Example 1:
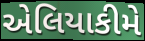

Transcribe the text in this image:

એલિયાકીમે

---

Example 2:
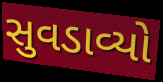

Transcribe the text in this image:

સુવડાવ્યો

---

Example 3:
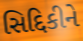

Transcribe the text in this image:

સિદ્દિકીને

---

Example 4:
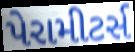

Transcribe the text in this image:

પેરામીટર્સ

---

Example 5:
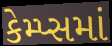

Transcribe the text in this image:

કેમ્પ્સમાં